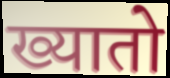
ख्यातो